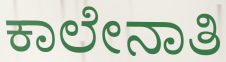
ಕಾಲೇನಾತಿ